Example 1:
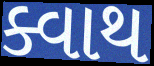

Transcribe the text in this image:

ક્વાથ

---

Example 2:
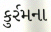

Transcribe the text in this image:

કુર્રમના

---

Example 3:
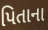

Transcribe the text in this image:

પિતાના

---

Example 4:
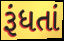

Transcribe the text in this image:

રૂંધતાં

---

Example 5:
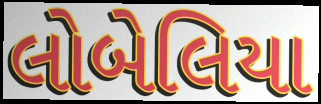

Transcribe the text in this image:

લોબેલિયા